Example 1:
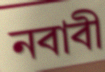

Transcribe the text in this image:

নবাবী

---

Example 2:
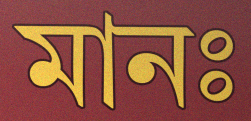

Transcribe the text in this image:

মানঃ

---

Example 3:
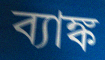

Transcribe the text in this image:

ব্যাঙ্ক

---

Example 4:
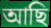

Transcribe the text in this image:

আছি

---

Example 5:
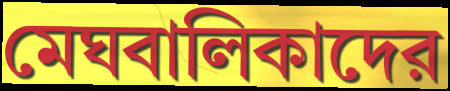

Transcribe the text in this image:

মেঘবালিকাদের